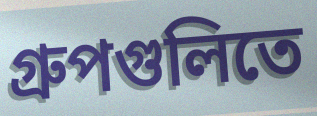
গ্রুপগুলিতে